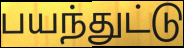
பயந்துட்டு